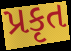
પ્રકૃત